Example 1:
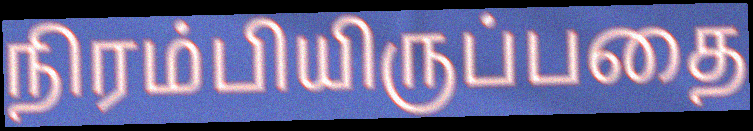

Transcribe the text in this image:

நிரம்பியிருப்பதை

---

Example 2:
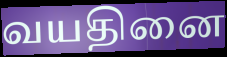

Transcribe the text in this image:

வயதினை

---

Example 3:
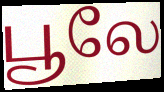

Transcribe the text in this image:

பூலே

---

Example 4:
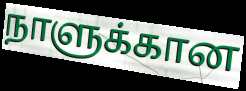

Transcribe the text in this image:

நாளுக்கான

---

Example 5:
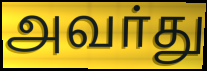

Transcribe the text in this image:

அவர்து